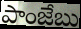
పాంజేబు